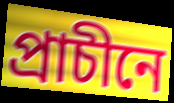
প্ৰাচীনে